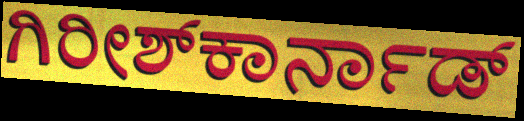
ಗಿರೀಶ್‌ಕಾರ್ನಾಡ್